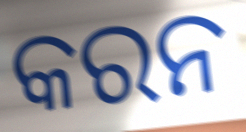
କରନ